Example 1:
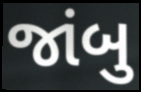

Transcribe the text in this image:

જાંબુ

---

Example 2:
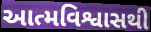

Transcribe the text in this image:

આત્મવિશ્વાસથી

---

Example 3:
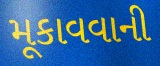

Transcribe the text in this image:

મૂકાવવાની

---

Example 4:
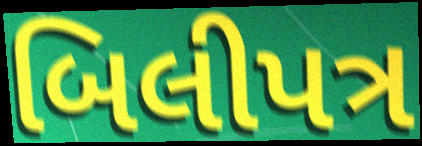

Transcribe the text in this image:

બિલીપત્ર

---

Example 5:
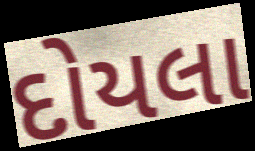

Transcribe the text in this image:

દોયલા